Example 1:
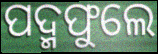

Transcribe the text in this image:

ପଦ୍ମଫୁଲେ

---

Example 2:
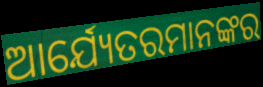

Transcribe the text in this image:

ଆର୍ଯ୍ୟେତରମାନଙ୍କର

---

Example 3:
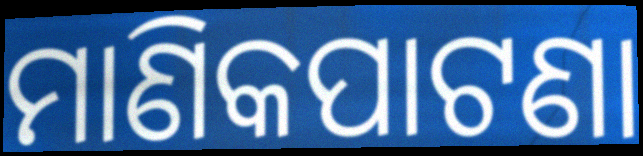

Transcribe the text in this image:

ମାଣିକପାଟଣା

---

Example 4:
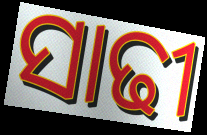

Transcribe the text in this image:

ସାଢୀ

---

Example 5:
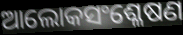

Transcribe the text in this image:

ଆଲୋକସଂଶ୍ଳେଷଣ